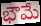
భౌమే